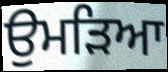
ਉਮੜਿਆ